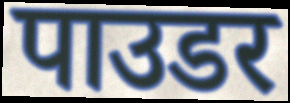
पाउडर